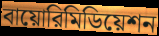
বায়োরিমিডিয়েশন